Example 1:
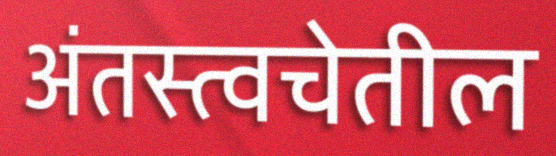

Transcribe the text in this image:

अंतस्त्वचेतील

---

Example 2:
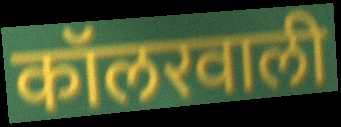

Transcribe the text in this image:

कॉलरवाली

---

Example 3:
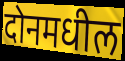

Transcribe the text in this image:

दोनमधील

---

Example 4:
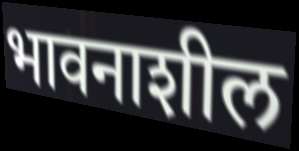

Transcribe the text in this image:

भावनाशील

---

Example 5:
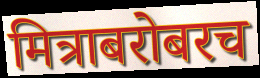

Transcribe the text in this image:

मित्राबरोबरच